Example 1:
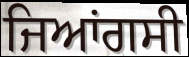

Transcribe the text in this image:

ਜਿਆਂਗਸੀ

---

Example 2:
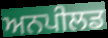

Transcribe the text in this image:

ਅਨਪੀਲਡ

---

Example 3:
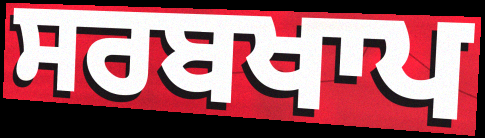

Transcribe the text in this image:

ਸਰਬਖਾਪ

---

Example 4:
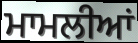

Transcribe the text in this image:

ਮਾਮਲੀਆਂ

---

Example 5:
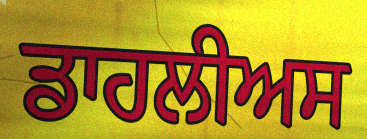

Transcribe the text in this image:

ਡਾਹਲੀਅਸ